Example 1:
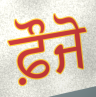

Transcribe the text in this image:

ਫ਼ੌਜੋ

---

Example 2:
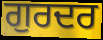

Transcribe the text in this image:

ਗੁਰਦਰ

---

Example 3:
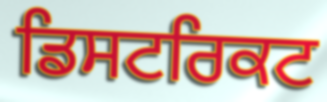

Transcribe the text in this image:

ਡਿਸਟਰਿਕਟ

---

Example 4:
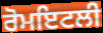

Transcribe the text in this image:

ਰੋਮਇਟਲੀ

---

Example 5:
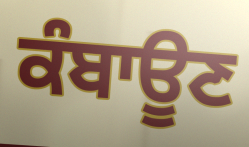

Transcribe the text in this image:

ਕੰਬਾਊਣ